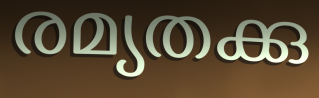
രമ്യതക്കു